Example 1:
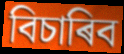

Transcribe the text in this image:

বিচাৰিব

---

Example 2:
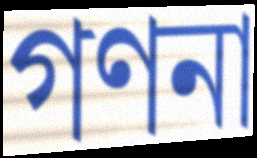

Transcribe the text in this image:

গণনা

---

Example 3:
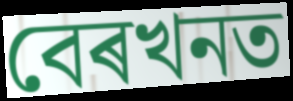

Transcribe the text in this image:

বেৰখনত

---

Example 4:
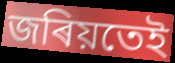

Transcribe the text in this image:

জৰিয়তেই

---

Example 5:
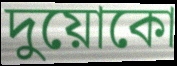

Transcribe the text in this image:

দুয়োকো